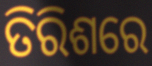
ତିରିଶରେ